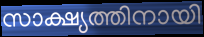
സാക്ഷ്യത്തിനായി